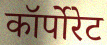
कॉर्पोरेट